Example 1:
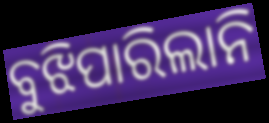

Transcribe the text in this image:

ବୁଝିପାରିଲାନି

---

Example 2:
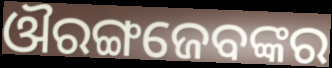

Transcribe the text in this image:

ଔରଙ୍ଗଜେବଙ୍କର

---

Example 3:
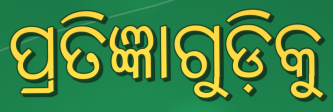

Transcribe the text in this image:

ପ୍ରତିଜ୍ଞାଗୁଡ଼ିକୁ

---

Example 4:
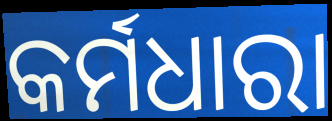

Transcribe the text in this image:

କର୍ମଧାରା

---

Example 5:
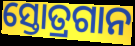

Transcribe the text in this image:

ସ୍ତୋତ୍ରଗାନ